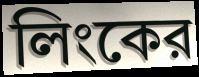
লিংকের